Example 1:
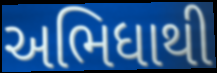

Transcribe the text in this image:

અભિધાથી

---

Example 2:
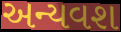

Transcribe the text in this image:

અન્યવશ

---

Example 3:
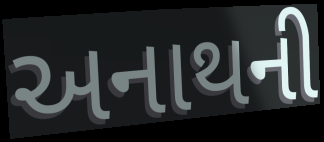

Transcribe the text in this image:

અનાથની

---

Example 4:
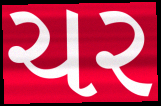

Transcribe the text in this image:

ચર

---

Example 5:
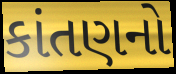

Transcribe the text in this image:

કાંતણનો